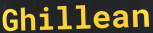
Ghillean